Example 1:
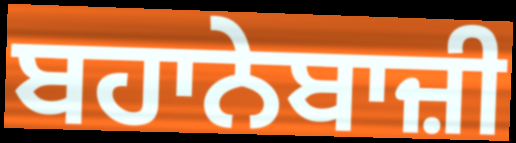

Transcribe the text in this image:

ਬਹਾਨੇਬਾਜ਼ੀ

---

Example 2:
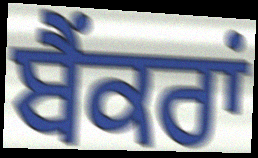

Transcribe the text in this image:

ਬੈਂਕਰਾਂ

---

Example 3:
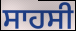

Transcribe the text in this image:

ਸਾਹਸੀ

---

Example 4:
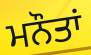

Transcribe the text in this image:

ਮਨੌਤਾਂ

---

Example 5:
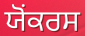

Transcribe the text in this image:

ਯੋੰਕਰਸ